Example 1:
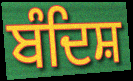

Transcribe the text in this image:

ਬੰਦਿਸ਼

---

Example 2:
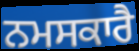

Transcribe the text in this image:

ਨਮਸਕਾਰੈ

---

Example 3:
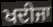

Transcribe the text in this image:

ਖਦੀਜਾ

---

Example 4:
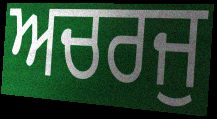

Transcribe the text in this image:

ਅਚਰਜੁ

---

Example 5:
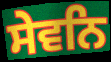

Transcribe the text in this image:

ਸੇਵਨਿ